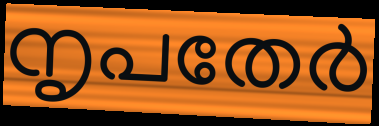
നൃപതേർ